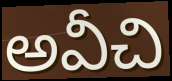
అవీచి